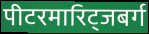
पीटरमारिट्जबर्ग